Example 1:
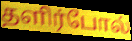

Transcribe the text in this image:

தளிர்போல்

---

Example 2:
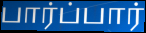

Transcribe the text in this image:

பார்ப்பார்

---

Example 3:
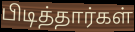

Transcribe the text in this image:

பிடித்தார்கள்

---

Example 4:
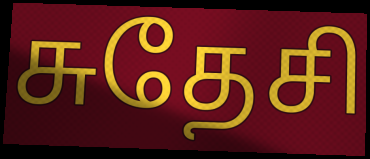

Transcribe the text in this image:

சுதேசி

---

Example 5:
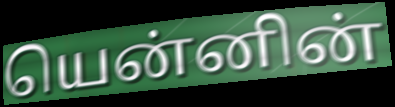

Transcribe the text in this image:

யென்னின்